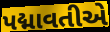
પદ્માવતીએ